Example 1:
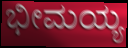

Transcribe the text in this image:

ಭೀಮಯ್ಯ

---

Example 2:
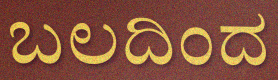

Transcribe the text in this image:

ಬಲದಿಂದ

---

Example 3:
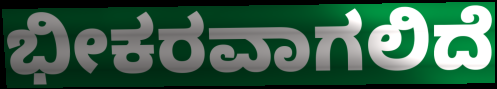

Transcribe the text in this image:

ಭೀಕರವಾಗಲಿದೆ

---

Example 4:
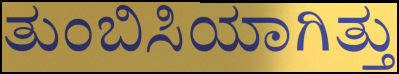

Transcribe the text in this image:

ತುಂಬಿಸಿಯಾಗಿತ್ತು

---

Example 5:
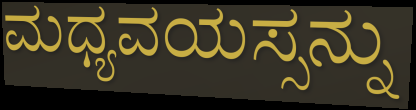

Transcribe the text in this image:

ಮಧ್ಯವಯಸ್ಸನ್ನು